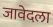
जावेदला